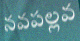
నవపల్లవ